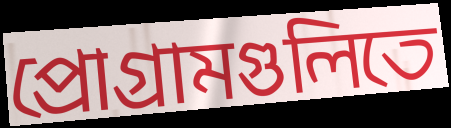
প্রোগ্রামগুলিতে